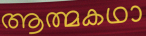
ആത്മകഥാ